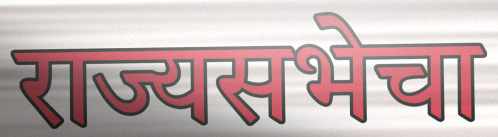
राज्यसभेचा